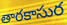
తారకాసుర